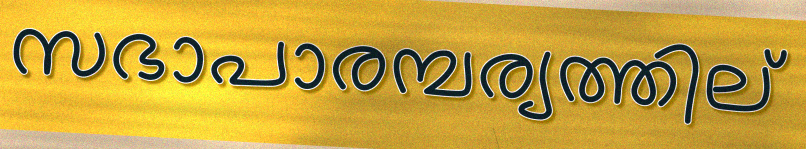
സഭാപാരമ്പര്യത്തില്